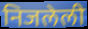
निजलेली